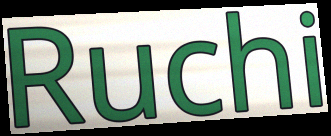
Ruchi